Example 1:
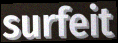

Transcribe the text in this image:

surfeit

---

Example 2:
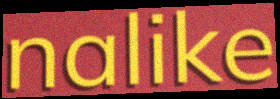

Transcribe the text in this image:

nalike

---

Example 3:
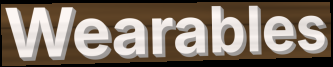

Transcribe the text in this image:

Wearables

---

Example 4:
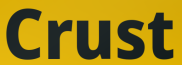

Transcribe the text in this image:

Crust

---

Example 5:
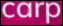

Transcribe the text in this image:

carp